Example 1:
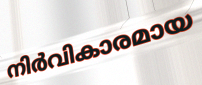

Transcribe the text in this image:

നിർവികാരമായ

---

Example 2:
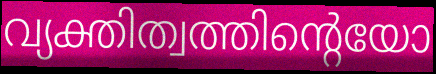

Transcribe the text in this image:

വ്യക്തിത്വത്തിന്റെയോ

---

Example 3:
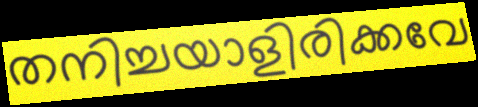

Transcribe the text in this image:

തനിച്ചയാളിരിക്കവേ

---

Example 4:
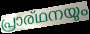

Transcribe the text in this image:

പ്രാര്ഥനയും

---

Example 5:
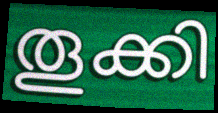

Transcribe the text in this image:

തൂക്കി